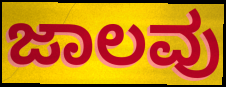
ಜಾಲವು